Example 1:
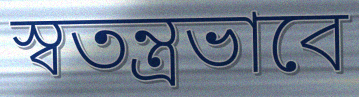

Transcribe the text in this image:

স্বতন্ত্রভাবে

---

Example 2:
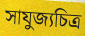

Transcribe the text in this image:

সাযুজ্যচিত্র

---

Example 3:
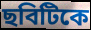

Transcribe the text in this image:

ছবিটিকে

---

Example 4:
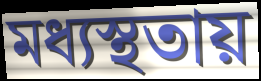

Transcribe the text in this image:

মধ্যস্থতায়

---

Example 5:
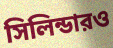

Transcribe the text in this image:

সিলিন্ডারও